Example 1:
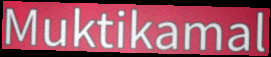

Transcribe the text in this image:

Muktikamal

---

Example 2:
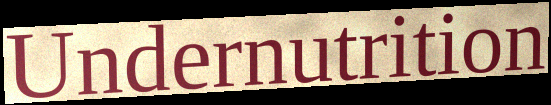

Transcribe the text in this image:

Undernutrition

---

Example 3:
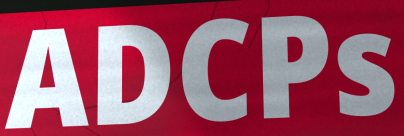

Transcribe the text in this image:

ADCPs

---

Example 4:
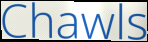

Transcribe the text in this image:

Chawls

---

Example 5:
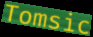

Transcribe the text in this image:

Tomsic